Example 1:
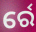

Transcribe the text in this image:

ର୍ରେ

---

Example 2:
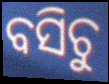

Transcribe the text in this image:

ବସିଚୁ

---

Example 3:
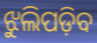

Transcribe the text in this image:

ଝୁଲିପଡ଼ିବ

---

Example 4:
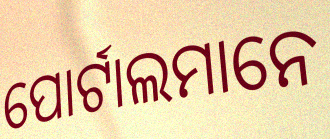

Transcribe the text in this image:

ପୋର୍ଟାଲମାନେ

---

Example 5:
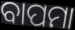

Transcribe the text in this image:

ବାପମା